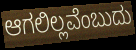
ಆಗಲಿಲ್ಲವೆಂಬುದು